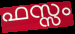
ഫസ്സം